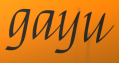
gayu